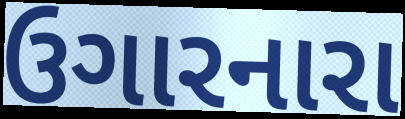
ઉગારનારા